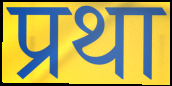
प्रथा